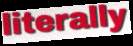
literally